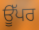
ਊੱਪਰ